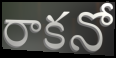
రాకనో